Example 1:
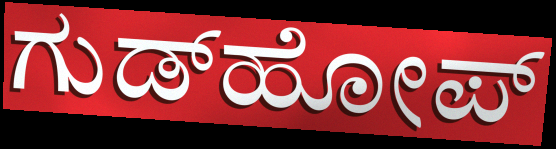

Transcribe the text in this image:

ಗುಡ್‌ಹೋಪ್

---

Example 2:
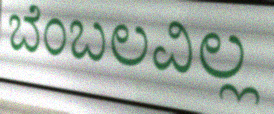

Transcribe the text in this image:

ಬೆಂಬಲವಿಲ್ಲ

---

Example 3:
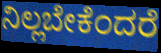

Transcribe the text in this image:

ನಿಲ್ಲಬೇಕೆಂದರೆ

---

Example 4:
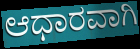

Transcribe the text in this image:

ಆಧಾರವಾಗಿ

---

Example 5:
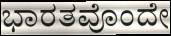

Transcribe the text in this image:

ಭಾರತವೊಂದೇ